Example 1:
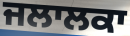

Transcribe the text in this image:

ਜਲਾਲਕਾ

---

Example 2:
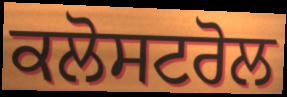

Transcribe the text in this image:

ਕਲੋਸਟਰੋਲ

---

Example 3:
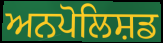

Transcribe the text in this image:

ਅਨਪੋਲਿਸ਼ਡ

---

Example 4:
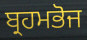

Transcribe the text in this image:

ਬ੍ਰਹਮਭੋਜ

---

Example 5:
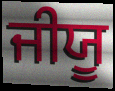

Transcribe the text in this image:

ਜੀਯੂ